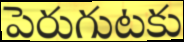
పెరుగుటకు